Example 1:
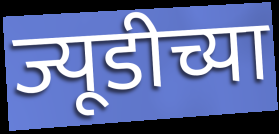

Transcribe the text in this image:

ज्यूडीच्या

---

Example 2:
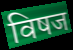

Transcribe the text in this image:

विषज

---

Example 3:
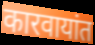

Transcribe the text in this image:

कारवायांत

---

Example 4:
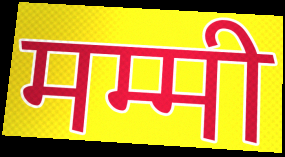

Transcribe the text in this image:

मम्मी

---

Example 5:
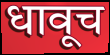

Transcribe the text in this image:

धावूच